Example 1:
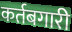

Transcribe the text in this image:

कर्तबगारी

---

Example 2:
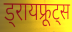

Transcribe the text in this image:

ड्रायफ्रूट्स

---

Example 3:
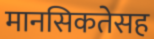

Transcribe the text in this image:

मानसिकतेसह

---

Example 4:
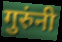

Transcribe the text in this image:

गुरुंनी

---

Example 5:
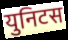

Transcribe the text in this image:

युनिटस